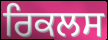
ਰਿਕਲਸ